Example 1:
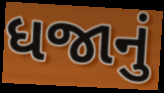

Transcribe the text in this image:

ધજાનું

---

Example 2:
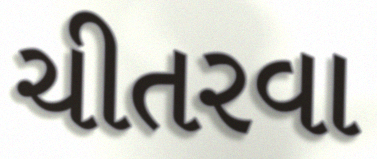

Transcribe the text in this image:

ચીતરવા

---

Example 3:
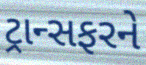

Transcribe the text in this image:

ટ્રાન્સફરને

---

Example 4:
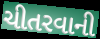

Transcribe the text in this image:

ચીતરવાની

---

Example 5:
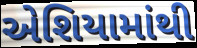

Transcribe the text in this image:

એશિયામાંથી